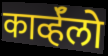
कार्व्हॅलो